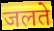
जलते